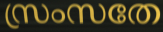
സ്രംസതേ